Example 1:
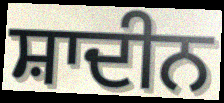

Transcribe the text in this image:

ਸ਼ਾਦੀਨ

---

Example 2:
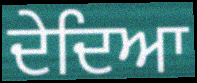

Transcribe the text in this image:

ਦੇਦਿਆ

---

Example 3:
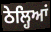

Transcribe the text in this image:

ਠੇਲ੍ਹਿਆਂ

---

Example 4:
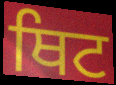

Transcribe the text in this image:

ਥਿਟ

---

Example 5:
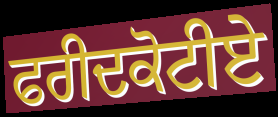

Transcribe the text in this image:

ਫਰੀਦਕੋਟੀਏ